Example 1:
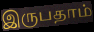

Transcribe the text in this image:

இருபதாம்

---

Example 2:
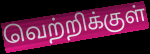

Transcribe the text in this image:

வெற்றிக்குள்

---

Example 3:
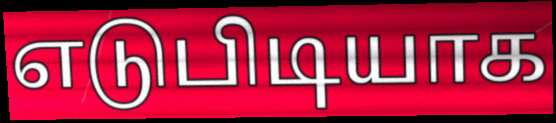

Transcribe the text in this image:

எடுபிடியாக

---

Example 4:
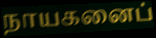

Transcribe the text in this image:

நாயகனைப்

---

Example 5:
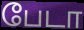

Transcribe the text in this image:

பேடா